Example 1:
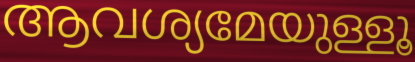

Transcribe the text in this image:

ആവശ്യമേയുള്ളൂ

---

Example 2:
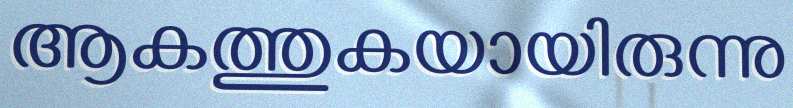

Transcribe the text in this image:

ആകത്തുകയായിരുന്നു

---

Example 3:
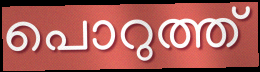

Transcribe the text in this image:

പൊറുത്ത്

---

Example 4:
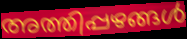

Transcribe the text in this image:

അത്തിപ്പഴങ്ങൾ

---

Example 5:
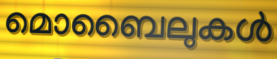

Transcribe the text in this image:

മൊബൈലുകൾ